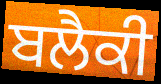
ਬਲੈਕੀ